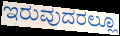
ಇರುವುದರಲ್ಲೂ